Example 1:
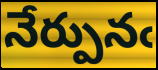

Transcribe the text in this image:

నేర్పునఁ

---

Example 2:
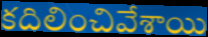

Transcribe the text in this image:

కదిలించివేశాయి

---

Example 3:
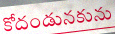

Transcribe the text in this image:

కోదండునకును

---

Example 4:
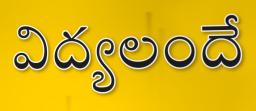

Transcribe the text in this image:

విద్యలందే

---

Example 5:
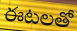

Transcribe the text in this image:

ఈటలతో